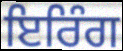
ਇਰਿੰਗ